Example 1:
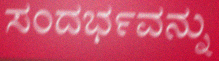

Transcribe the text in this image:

ಸಂದರ್ಭವನ್ನು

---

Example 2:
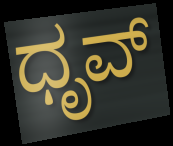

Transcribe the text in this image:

ಧೃವ್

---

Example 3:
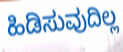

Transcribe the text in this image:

ಹಿಡಿಸುವುದಿಲ್ಲ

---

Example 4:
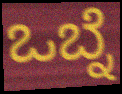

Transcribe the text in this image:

ಒಬ್ನೆ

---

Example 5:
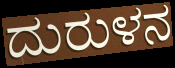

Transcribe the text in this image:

ದುರುಳನ